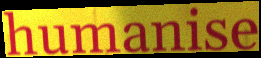
humanise